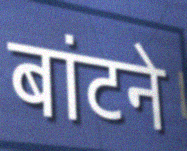
बांटने